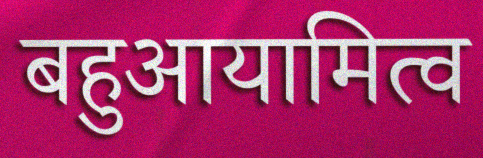
बहुआयामित्व